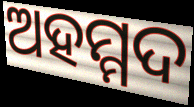
ଅହମ୍ମଦ